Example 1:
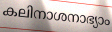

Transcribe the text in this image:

കലിനാശനാഭ്യാം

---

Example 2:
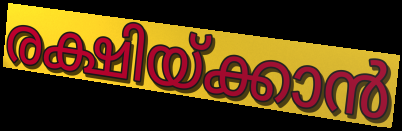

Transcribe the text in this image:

രക്ഷിയ്ക്കാൻ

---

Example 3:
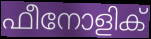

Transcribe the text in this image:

ഫീനോളിക്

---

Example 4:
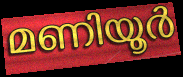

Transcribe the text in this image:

മണിയൂർ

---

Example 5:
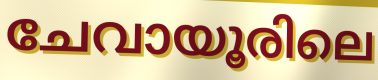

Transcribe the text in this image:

ചേവായൂരിലെ